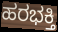
ಹರಭಕ್ತಿ